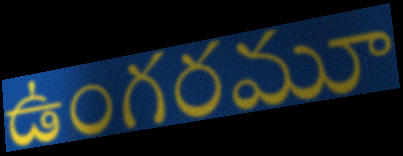
ఉంగరమూ